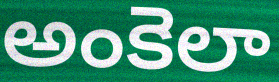
అంకెలా